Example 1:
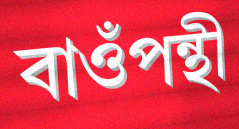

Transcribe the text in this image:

বাওঁপন্থী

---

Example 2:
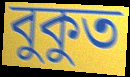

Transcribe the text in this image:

বুকুত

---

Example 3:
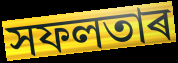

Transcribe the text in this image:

সফলতাৰ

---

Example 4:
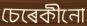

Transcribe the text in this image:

চেৰেকীনো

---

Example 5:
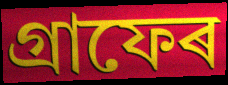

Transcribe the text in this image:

গ্ৰাফেৰ